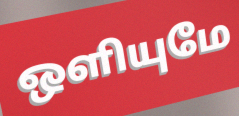
ஒளியுமே